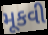
મૂકવી